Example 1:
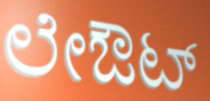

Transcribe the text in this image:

ಲೇಔಟ್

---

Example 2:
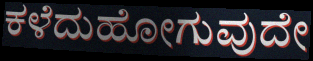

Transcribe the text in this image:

ಕಳೆದುಹೋಗುವುದೇ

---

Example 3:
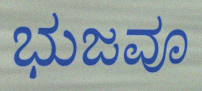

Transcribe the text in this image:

ಭುಜವೂ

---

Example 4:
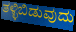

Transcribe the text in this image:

ತಳ್ಳಿಬಿಡುವುದು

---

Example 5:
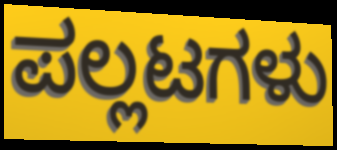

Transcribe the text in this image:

ಪಲ್ಲಟಗಳು